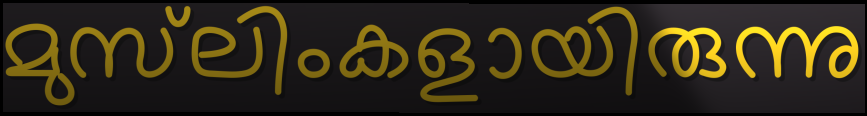
മുസ്‌ലിംകളായിരുന്നു